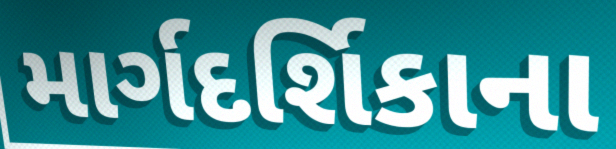
માર્ગદર્શિકાના